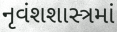
નૃવંશશાસ્ત્રમાં